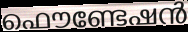
ഫൌണ്ടേഷൻ